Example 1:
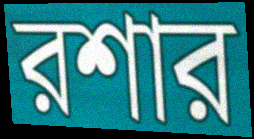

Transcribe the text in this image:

রশার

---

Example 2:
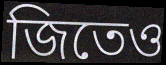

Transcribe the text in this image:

জিতেও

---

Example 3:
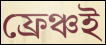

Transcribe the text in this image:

ফ্রেঞ্চই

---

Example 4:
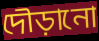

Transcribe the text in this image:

দৌড়ানো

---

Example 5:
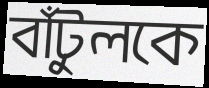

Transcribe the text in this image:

বাঁটুলকে